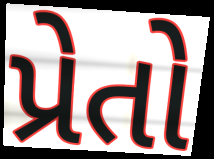
પ્રેતો